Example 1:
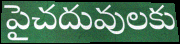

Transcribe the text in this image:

పైచదువులకు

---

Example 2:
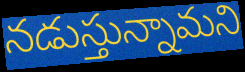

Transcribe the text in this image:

నడుస్తున్నామని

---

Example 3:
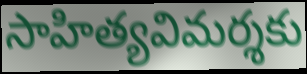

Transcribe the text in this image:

సాహిత్యవిమర్శకు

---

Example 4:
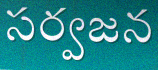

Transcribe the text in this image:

సర్వజన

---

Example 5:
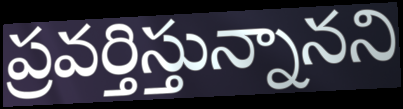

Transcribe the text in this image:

ప్రవర్తిస్తున్నానని